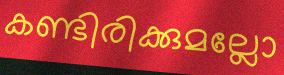
കണ്ടിരിക്കുമല്ലോ